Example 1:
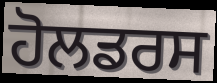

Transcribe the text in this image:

ਹੋਲਡਰਸ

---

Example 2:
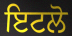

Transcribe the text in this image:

ਇਟਲੋ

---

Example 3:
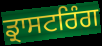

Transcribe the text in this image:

ਡ੍ਰਾਸਟਰਿੰਗ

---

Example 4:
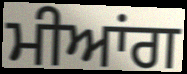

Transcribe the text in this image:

ਮੀਆਂਗ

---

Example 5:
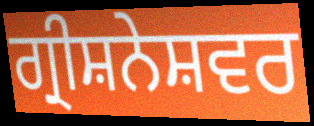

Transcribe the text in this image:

ਗ੍ਰੀਸ਼ਨੇਸ਼ਵਰ